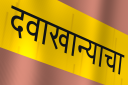
दवाखान्याचा